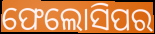
ଫେଲୋସିପର